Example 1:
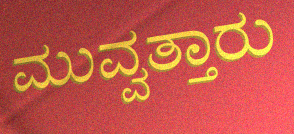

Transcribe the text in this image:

ಮುವ್ವತ್ತಾರು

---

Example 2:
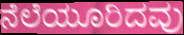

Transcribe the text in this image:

ನೆಲೆಯೂರಿದವು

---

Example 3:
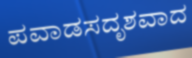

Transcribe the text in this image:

ಪವಾಡಸದೃಶವಾದ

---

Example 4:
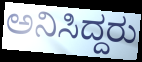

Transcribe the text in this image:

ಅನಿಸಿದ್ದರು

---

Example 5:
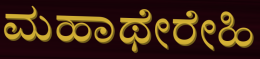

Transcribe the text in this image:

ಮಹಾಥೇರೇಹಿ